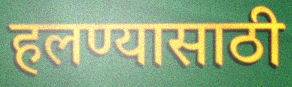
हलण्यासाठी